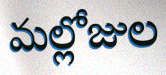
మల్లోజుల